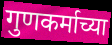
गुणकर्माच्या